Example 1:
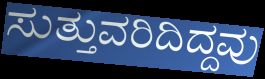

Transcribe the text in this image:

ಸುತ್ತುವರಿದಿದ್ದವು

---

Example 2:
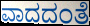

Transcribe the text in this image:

ವಾದದಂತೆ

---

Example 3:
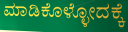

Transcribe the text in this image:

ಮಾಡಿಕೊಳ್ಳೋದಕ್ಕೆ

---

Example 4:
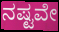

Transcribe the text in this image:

ನಷ್ಟವೇ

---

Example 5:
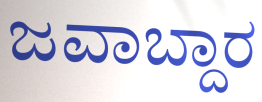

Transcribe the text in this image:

ಜವಾಬ್ದಾರ